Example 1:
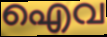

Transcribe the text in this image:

ഐവ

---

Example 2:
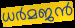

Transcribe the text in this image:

ധർമജൻ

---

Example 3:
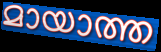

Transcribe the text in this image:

മായാത്ത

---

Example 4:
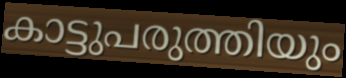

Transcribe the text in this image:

കാട്ടുപരുത്തിയും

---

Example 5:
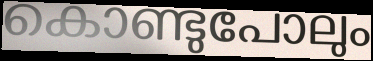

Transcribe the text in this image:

കൊണ്ടുപോലും